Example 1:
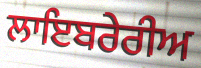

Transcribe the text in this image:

ਲਾਇਬਰੇਰੀਅ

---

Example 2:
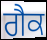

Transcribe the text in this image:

ਗੈਕ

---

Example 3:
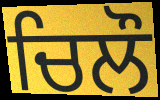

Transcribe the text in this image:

ਚਿਲੌ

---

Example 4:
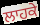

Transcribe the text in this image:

ਲਾਹਕੇ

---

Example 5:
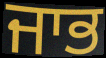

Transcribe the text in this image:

ਜਾਭ